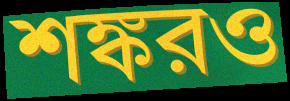
শঙ্করও